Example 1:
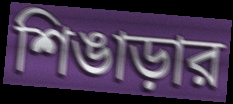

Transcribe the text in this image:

শিঙাড়ার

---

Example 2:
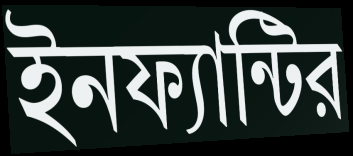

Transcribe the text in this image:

ইনফ্যান্টির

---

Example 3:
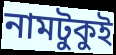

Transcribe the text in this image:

নামটুকুই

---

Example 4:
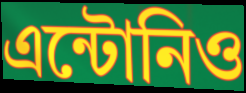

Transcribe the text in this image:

এন্টোনিও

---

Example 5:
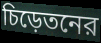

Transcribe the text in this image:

চিড়েতনের